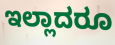
ಇಲ್ಲಾದರೂ